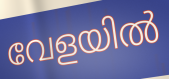
വേളയിൽ